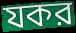
যকর